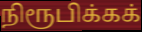
நிரூபிக்கக்